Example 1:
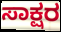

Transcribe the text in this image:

ಸಾಕ್ಷರ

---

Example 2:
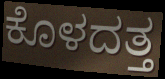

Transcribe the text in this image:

ಕೊಳದತ್ತ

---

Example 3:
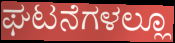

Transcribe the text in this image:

ಘಟನೆಗಳಲ್ಲೂ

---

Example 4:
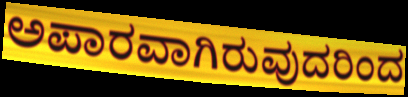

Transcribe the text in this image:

ಅಪಾರವಾಗಿರುವುದರಿಂದ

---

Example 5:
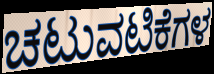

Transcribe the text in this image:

ಚಟುವಟಿಕೆಗಳ